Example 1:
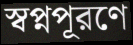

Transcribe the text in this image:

স্বপ্নপূরণে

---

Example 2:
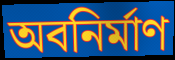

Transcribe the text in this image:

অবনির্মাণ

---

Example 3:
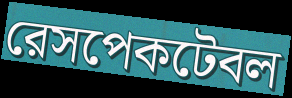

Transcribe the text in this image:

রেসপেকটেবল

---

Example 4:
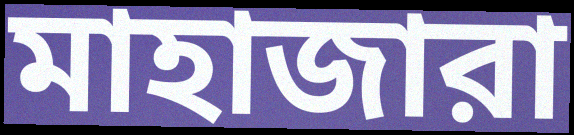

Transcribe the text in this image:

মাহাজারা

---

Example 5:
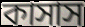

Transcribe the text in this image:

কাসাস